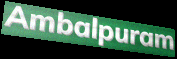
Ambalpuram